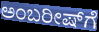
ಅಂಬರೀಷ್‌ಗೆ